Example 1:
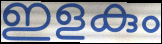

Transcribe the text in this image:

ഇളകും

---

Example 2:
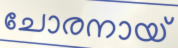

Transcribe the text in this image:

ചോരനായ്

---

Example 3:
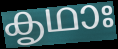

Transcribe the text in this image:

കൃഥാഃ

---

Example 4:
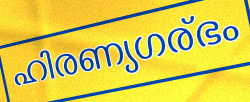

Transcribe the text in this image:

ഹിരണ്യഗര്ഭം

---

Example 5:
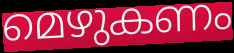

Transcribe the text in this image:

മെഴുകണം